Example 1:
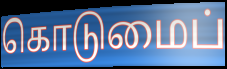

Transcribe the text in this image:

கொடுமைப்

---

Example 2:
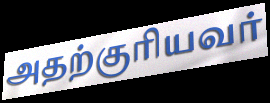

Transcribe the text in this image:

அதற்குரியவர்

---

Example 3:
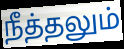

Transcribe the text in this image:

நீத்தலும்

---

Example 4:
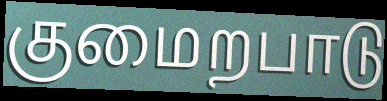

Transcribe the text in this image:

குமைறபாடு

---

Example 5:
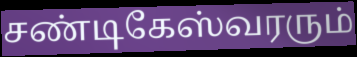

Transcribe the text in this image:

சண்டிகேஸ்வரரும்